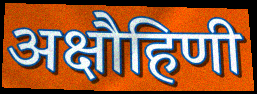
अक्षौहिणी